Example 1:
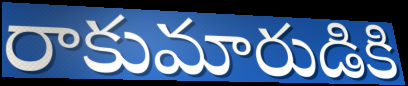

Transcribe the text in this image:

రాకుమారుడికి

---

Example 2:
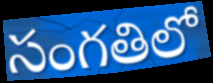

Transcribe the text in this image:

సంగతిలో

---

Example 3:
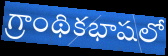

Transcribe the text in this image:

గ్రాంథికభాషలో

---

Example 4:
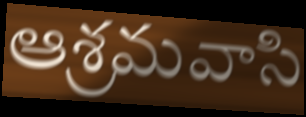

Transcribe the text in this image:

ఆశ్రమవాసి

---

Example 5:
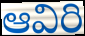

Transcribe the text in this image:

ఆవిరి